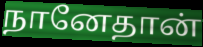
நானேதான்